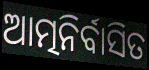
ଆତ୍ମନିର୍ବାସିତ